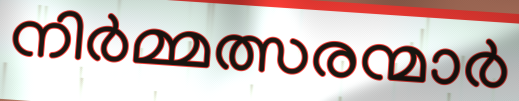
നിർമ്മത്സരന്മാർ